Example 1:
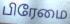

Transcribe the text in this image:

பிரேமை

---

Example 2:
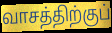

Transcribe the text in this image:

வாசத்திற்குப்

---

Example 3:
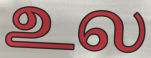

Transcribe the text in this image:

உல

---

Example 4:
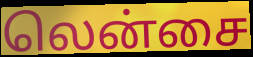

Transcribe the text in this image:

லென்சை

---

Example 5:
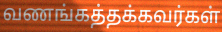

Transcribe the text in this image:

வணங்கத்தக்கவர்கள்